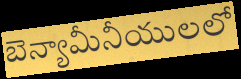
బెన్యామీనీయులలో